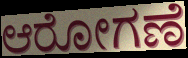
ಆರೋಗಣೆ